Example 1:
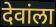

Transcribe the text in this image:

देवांला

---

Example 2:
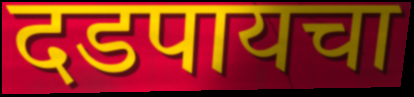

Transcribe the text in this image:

दडपायचा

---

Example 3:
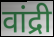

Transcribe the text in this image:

वांद्री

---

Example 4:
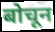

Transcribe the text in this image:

बोचून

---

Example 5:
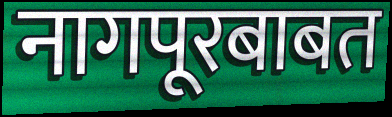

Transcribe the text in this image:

नागपूरबाबत